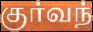
குர்வந்